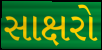
સાક્ષરો